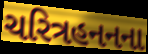
ચરિત્રહનનના